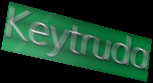
Keytruda